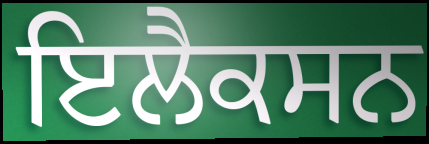
ਇਲੈਕਸਨ